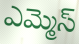
ఎమ్మెస్